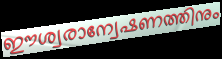
ഈശ്വരാന്വേഷണത്തിനും